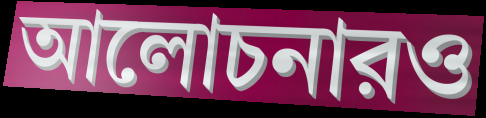
আলোচনারও